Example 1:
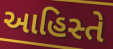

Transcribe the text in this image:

આહિસ્તે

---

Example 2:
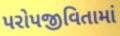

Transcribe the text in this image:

પરોપજીવિતામાં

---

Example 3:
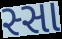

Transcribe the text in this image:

સ્સા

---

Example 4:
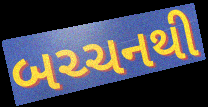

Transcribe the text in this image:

બચ્ચનથી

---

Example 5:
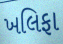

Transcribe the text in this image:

ખલિફા